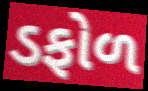
ડફોળ